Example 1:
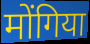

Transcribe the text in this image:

मोंगिया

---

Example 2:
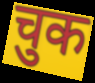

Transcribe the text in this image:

चुक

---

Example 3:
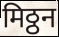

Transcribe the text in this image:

मिठ्ठन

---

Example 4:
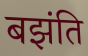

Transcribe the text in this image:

बझंति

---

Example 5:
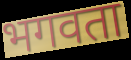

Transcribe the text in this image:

भगवता